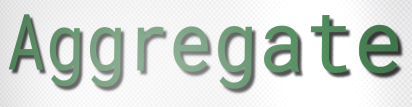
Aggregate